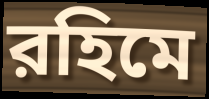
রহিমে